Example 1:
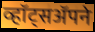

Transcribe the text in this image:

व्हॉट्सॲपने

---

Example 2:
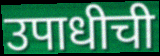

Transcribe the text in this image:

उपाधीची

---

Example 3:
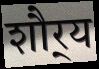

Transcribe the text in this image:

शौर्य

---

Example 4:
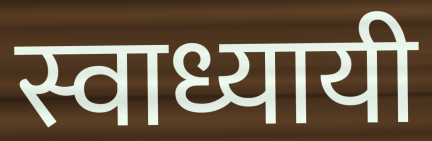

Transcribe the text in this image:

स्वाध्यायी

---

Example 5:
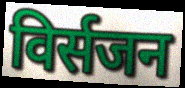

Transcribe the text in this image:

विर्सजन